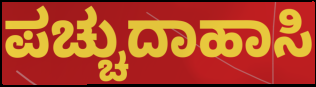
ಪಚ್ಚುದಾಹಾಸಿ